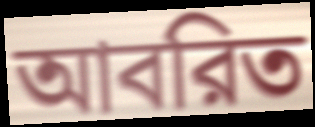
আবরিত